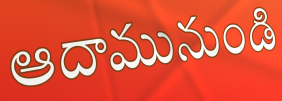
ఆదామునుండి